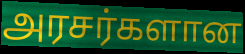
அரசர்களான